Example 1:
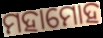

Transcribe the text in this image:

ମହାମୋହ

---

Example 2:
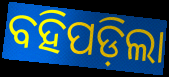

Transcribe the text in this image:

ବହିପଡ଼ିଲା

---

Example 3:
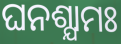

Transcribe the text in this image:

ଘନଶ୍ଯାମଃ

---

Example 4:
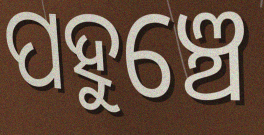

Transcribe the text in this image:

ପହୁଞ୍ଚେ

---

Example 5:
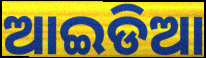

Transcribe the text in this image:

ଆଇଡିଆ